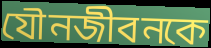
যৌনজীবনকে